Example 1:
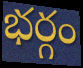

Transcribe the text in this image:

భర్గం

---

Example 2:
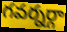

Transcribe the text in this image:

గవర్నర్గా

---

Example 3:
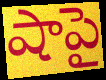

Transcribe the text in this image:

షాపై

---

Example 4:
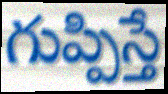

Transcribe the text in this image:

గుప్పిస్తే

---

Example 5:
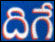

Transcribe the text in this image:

దిగే